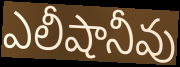
ఎలీషానీవు